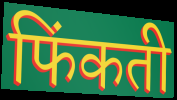
फिंकती